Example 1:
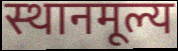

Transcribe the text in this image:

स्थानमूल्य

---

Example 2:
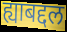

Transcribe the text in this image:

ह्याबद्दल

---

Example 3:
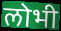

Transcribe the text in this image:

लोभी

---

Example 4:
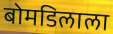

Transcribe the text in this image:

बोमडिलाला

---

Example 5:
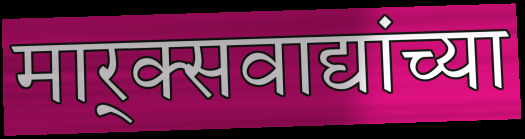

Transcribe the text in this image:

मार्क्सवाद्यांच्या